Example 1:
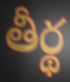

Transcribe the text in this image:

తీర్థ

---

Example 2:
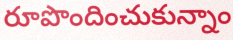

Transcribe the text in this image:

రూపొందించుకున్నాం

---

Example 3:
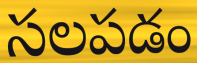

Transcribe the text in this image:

సలపడం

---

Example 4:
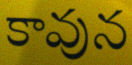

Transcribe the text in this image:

కావున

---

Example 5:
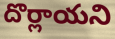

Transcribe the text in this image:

దొర్లాయని